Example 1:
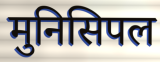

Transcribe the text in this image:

मुनिसिपल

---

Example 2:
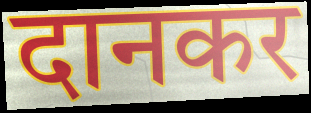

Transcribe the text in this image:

दानकर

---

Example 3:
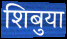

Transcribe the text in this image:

शिबुया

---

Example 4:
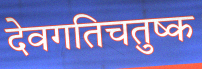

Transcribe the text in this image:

देवगतिचतुष्क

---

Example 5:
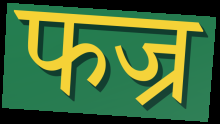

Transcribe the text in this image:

फज्र